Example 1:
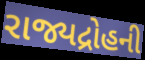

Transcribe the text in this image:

રાજ્યદ્રોહની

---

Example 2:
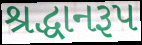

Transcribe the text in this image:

શ્રદ્ધાનરૂપ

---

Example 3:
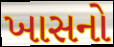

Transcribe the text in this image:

ખાસનો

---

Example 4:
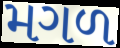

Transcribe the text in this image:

મગળ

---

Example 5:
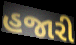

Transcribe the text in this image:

હજારી